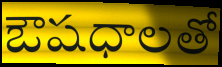
ఔషధాలతో